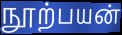
நூற்பயன்